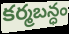
కర్మబన్ధం